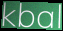
kbal